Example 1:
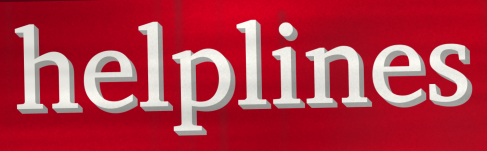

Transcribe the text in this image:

helplines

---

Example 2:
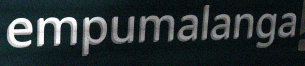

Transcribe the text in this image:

empumalanga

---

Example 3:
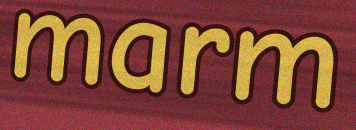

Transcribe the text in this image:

marm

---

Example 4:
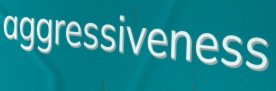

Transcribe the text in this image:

aggressiveness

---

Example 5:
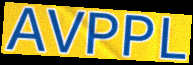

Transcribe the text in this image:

AVPPL